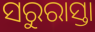
ସରୁରାସ୍ତା